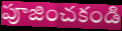
పూజించకండి